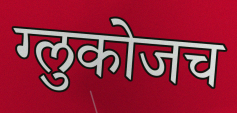
ग्लुकोजच